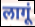
लागूं